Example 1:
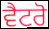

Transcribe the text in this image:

ਵੈਟਰੋ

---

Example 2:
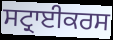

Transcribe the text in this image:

ਸਟ੍ਰਾਈਕਰਸ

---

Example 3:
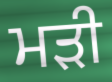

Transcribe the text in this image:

ਮੜੀ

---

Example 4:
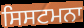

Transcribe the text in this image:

ਸਿਸਟਮਨਾ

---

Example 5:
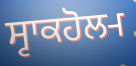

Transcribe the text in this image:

ਸ੍ਟਾਕਹੋਲ੍ਮ